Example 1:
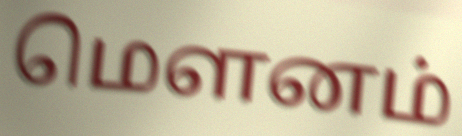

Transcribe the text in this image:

மௌனம்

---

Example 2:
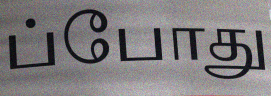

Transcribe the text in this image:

ப்போது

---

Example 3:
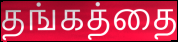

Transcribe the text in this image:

தங்கத்தை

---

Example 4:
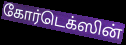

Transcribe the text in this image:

கோர்டெக்ஸின்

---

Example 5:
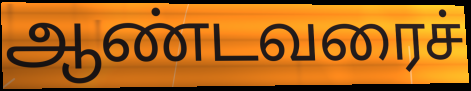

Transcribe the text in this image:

ஆண்டவரைச்